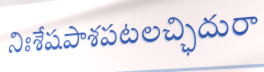
నిఃశేషపాశపటలచ్ఛిదురా